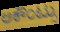
ಅಕೌಂಟ್ಸು